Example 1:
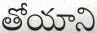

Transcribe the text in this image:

తోయాని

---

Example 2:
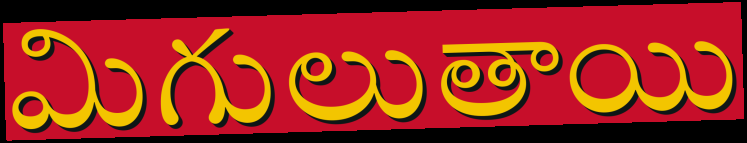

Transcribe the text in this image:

మిగులుతాయి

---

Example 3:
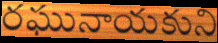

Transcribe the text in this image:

రఘునాయకుని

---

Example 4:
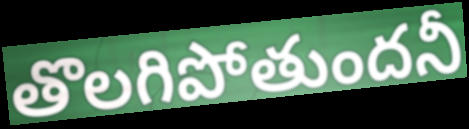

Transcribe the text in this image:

తొలగిపోతుందనీ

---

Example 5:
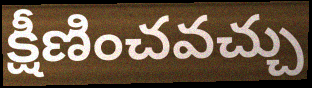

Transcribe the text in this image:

క్షీణించవచ్చు